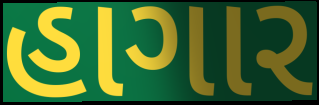
હાગાર